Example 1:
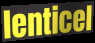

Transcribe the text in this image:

lenticel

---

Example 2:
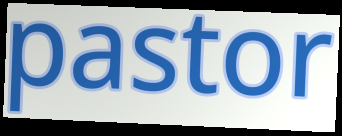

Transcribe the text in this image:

pastor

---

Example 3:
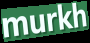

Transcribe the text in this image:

murkh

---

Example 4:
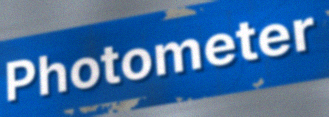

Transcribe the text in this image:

Photometer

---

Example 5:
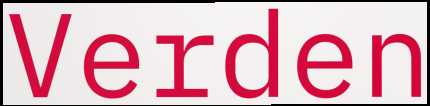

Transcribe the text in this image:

Verden